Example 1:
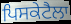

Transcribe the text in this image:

ਪਿਸਕੇਟੈਲਾ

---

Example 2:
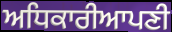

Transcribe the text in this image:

ਅਧਿਕਾਰੀਆਪਣੀ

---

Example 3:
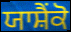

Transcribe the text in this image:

ਯਾਸ਼ੈਂਕੋ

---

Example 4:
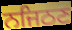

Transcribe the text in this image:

ਨਜਿਠਣ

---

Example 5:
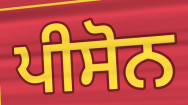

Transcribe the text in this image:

ਪੀਸੋਨ